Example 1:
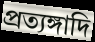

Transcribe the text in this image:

প্রত্যঙ্গাদি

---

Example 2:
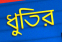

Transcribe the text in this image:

ধুতির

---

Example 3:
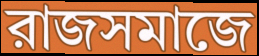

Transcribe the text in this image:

রাজসমাজে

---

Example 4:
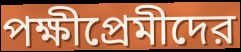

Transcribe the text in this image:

পক্ষীপ্রেমীদের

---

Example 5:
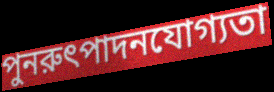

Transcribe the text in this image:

পুনরুৎপাদনযোগ্যতা